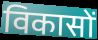
विकासों